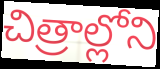
చిత్రాల్లోని